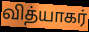
வித்யாகர்